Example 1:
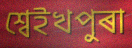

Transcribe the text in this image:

শ্বেইখপুৰা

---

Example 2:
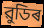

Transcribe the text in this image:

ৱুডিৰ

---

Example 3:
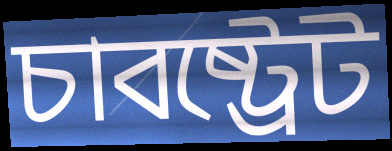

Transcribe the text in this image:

চাবষ্ট্ৰেট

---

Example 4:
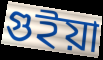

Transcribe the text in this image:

গুইয়া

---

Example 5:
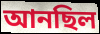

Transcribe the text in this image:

আনছিল